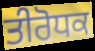
ਤੀਰੋਧਕ